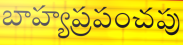
బాహ్యప్రపంచపు